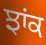
ਝਾਂਕ